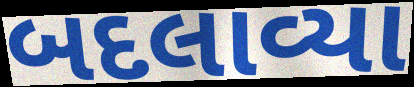
બદલાવ્યા